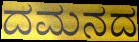
ದಮನದ